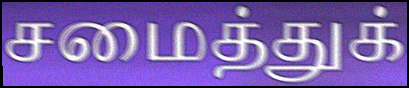
சமைத்துக்